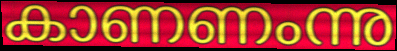
കാണണംന്നു